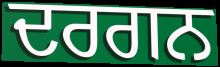
ਦਰਗਨ